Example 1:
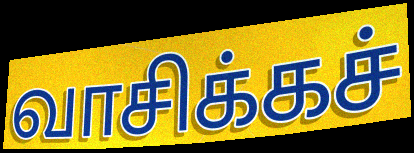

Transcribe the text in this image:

வாசிக்கச்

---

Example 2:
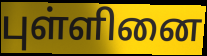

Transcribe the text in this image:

புள்ளினை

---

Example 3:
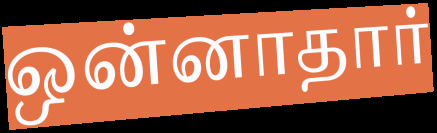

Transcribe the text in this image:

ஒன்னாதார்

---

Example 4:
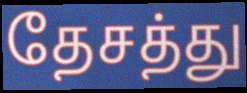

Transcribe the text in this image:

தேசத்து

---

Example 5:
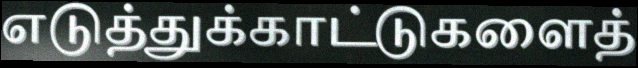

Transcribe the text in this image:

எடுத்துக்காட்டுகளைத்